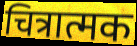
चित्रात्मक